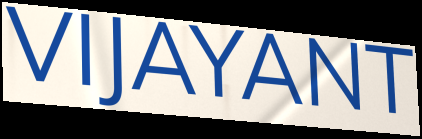
VIJAYANT